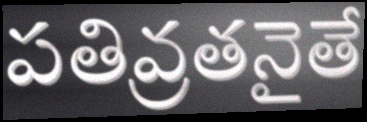
పతివ్రతనైతే